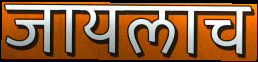
जायलाच